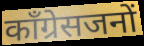
कॉंग्रेसजनों